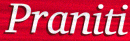
Praniti